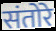
संतोरे